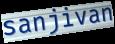
sanjivan